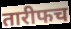
तारीफच